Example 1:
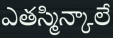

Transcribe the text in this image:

ఎతస్మిన్కాలే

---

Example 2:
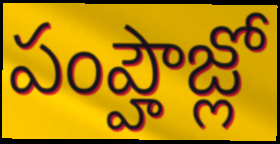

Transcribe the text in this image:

పంప్హౌజ్లో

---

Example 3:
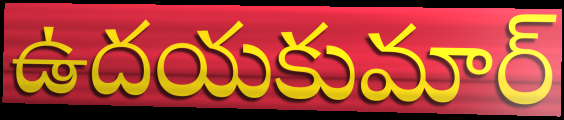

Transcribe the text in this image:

ఉదయకుమార్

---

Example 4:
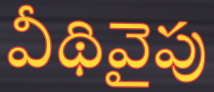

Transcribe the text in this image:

వీథివైపు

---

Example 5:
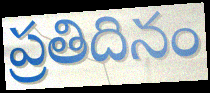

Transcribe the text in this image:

ప్రతిదినం